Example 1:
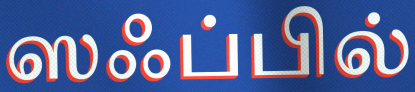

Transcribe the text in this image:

ஸஃப்பில்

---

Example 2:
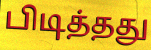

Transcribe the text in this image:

பிடித்தது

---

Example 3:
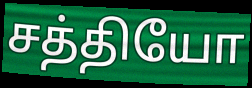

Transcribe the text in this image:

சத்தியோ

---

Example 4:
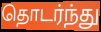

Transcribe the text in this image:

தொடர்ந்து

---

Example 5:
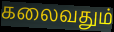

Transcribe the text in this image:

கலைவதும்